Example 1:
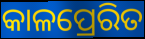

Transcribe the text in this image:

କାଳପ୍ରେରିତ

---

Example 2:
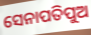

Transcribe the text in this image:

ସେନାପତିପୁଅ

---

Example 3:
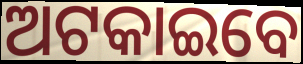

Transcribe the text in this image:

ଅଟକାଇବେ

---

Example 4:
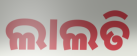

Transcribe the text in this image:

ଲାଲତି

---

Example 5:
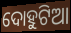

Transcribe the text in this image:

ଦୋହୁଟିଆ